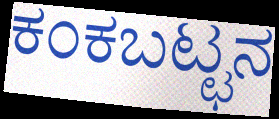
ಕಂಕಬಟ್ಟನ